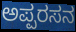
ಅಪ್ಪರಸನ